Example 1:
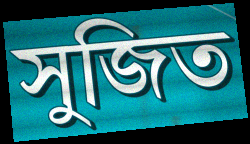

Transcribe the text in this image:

সুজিত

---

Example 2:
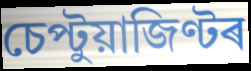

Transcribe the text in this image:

চেপ্টুয়াজিণ্টৰ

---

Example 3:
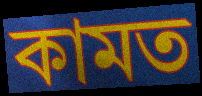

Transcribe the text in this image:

কামত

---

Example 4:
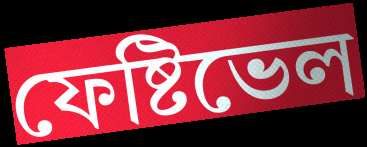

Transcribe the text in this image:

ফেষ্টিভেল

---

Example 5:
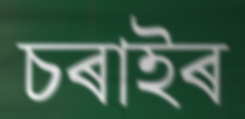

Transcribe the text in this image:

চৰাইৰ